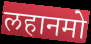
लहानमो